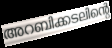
അറബിക്കടലിന്റെ